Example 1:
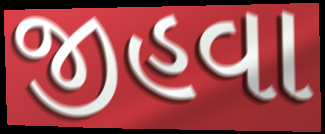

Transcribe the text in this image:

જીહવા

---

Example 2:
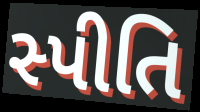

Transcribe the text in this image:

સ્પીતિ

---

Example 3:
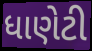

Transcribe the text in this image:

ધાણેટી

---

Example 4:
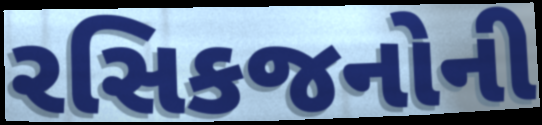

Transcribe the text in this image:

રસિકજનોની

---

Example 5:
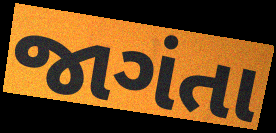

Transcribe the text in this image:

જાગંતા